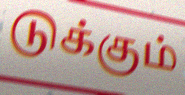
டுக்கும்